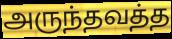
அருந்தவத்த